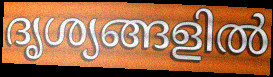
ദൃശ്യങ്ങളിൽ